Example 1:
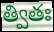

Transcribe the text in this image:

త్వితః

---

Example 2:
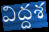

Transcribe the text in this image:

విద్దశ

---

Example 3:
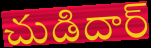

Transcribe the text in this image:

చుడిదార్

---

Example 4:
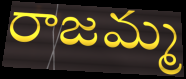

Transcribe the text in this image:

రాజమ్మ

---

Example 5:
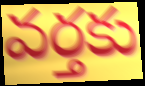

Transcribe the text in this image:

వర్తకు